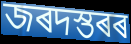
জৰদস্তৰৰ